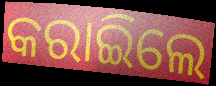
କରାଇିଲେ